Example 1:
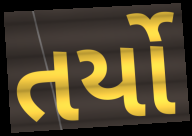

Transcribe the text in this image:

તર્યો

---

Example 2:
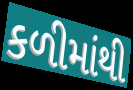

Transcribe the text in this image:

કળીમાંથી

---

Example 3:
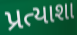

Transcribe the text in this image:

પ્રત્યાશા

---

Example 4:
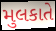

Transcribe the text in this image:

મુલકાતે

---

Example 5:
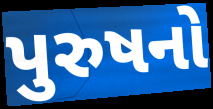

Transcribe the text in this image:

પુરુષનો